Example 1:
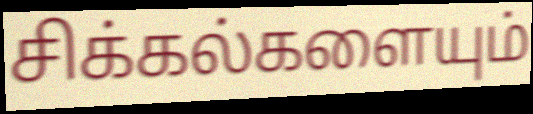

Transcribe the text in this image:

சிக்கல்களையும்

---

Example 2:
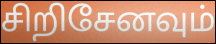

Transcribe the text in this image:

சிறிசேனவும்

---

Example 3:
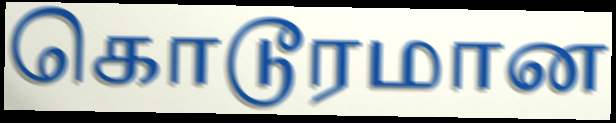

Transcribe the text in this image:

கொடூரமான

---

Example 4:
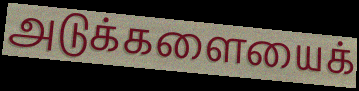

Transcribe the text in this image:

அடுக்களையைக்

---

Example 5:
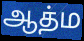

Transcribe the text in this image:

ஆத்ம